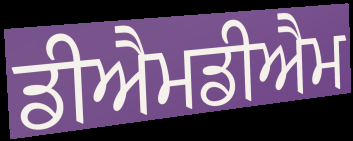
ਡੀਐਮਡੀਐਮ